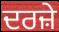
ਦਰਜ਼ੇ